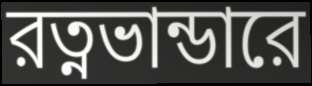
রত্নভান্ডারে